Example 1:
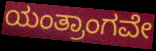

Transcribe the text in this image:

ಯಂತ್ರಾಂಗವೇ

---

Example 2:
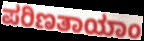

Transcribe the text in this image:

ಪರಿಣತಾಯಾಂ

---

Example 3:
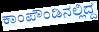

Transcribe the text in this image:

ಕಾಂಪೌಂಡಿನಲ್ಲಿದ್ದ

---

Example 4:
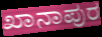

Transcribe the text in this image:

ಖಾನಾಪುರ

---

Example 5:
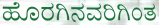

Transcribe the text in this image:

ಹೊರಗಿನವರಿಗಿಂತ